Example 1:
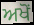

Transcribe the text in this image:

ਅਖੋਂ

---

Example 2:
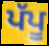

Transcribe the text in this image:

ਪੱਪੂ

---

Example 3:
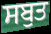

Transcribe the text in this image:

ਸਬੁਤ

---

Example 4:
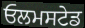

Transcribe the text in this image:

ਓਲਮਸਟੇਡ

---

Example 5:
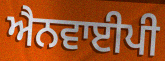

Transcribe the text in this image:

ਐਨਵਾਈਪੀ